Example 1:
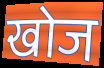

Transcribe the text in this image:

खोज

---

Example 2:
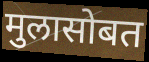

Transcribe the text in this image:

मुलासोबत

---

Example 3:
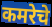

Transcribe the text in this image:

कमरेचे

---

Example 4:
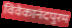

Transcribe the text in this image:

विवेकानंदपुरम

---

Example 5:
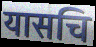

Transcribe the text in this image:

यासचि